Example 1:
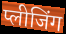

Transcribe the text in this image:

प्लीजिंग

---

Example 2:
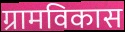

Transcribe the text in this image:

ग्रामविकास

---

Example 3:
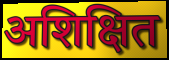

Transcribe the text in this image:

अशिक्षित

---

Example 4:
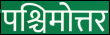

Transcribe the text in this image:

पश्चिमोत्तर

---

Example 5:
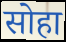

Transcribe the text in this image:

सोहा